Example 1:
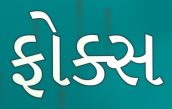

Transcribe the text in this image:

ફોક્સ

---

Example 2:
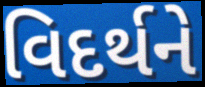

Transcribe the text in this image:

વિદર્થને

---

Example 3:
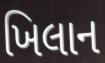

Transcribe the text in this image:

ખિલાન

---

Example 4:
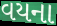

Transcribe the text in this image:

વયના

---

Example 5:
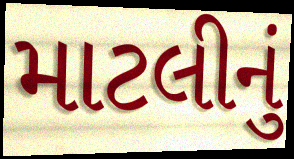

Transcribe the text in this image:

માટલીનું